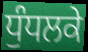
ਧੁੰਧਲਕੇ